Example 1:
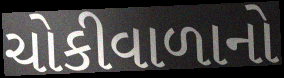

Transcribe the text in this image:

ચોકીવાળાનો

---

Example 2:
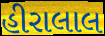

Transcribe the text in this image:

હીરાલાલ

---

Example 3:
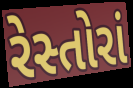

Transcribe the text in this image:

રેસ્તોરાં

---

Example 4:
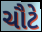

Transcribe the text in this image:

ચૌટે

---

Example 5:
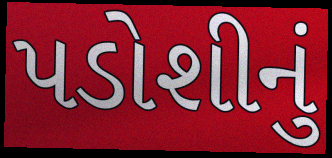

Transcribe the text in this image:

પડોશીનું